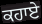
ਕਹਾਏ